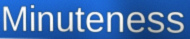
Minuteness